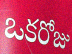
ఒకరోజు